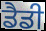
ਡੈਡੀ